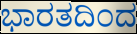
ಭಾರತದಿಂದ